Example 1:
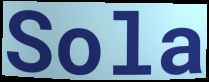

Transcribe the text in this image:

Sola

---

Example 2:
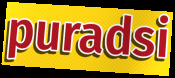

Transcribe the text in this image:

puradsi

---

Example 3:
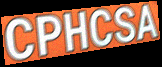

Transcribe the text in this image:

CPHCSA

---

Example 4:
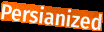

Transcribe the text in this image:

Persianized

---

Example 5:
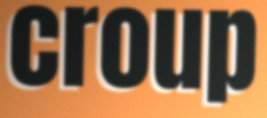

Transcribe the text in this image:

croup